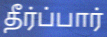
தீர்ப்பார்